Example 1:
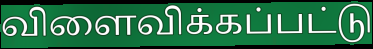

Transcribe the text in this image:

விளைவிக்கப்பட்டு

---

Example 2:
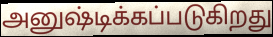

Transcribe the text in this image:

அனுஷ்டிக்கப்படுகிறது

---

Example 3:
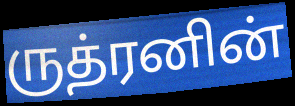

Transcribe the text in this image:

ருத்ரனின்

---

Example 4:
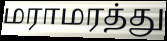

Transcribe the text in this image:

மராமரத்து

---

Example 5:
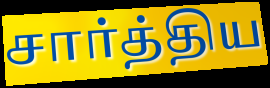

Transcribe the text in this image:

சார்த்திய